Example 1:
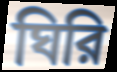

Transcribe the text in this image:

ঘিরি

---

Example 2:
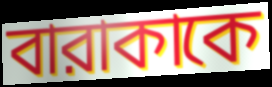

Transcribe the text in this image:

বারাকাকে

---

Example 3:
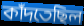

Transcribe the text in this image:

কাঁদতেছিল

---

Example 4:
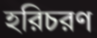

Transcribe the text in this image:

হরিচরণ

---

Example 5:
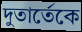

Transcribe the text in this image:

দুতার্তেকে